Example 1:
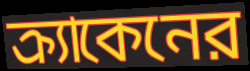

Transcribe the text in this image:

ক্র্যাকেনের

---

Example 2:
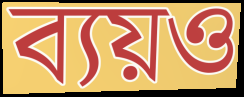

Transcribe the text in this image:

ব্যয়ও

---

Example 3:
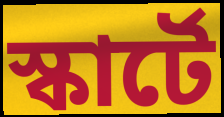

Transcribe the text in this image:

স্কার্টে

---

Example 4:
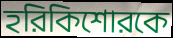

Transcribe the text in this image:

হরিকিশোরকে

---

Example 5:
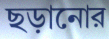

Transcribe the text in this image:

ছড়ানোর